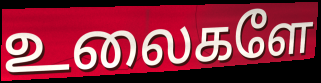
உலைகளே